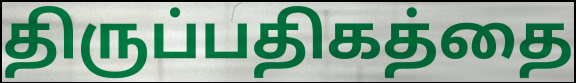
திருப்பதிகத்தை